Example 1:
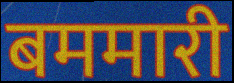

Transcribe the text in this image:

बममारी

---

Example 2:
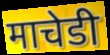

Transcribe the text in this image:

माचेडी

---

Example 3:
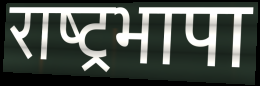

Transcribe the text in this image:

राष्ट्रभापा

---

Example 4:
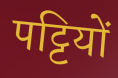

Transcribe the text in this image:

पट्टियों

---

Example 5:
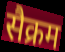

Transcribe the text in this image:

सैक्रम